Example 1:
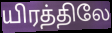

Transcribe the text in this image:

யிரத்திலே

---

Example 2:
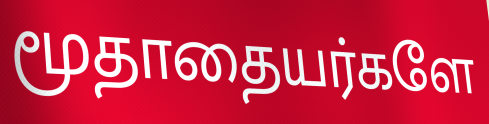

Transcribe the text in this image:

மூதாதையர்களே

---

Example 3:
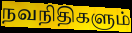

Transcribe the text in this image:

நவநிதிகளும்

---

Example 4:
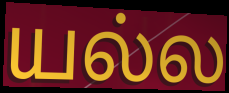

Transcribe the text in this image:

யல்ல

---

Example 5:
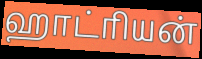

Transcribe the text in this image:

ஹாட்ரியன்